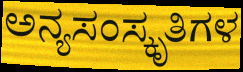
ಅನ್ಯಸಂಸ್ಕೃತಿಗಳ